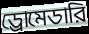
ড্রোমেডারি